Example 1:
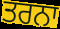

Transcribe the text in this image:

ਤਰਨਾ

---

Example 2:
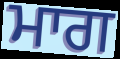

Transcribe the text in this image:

ਮਾਗ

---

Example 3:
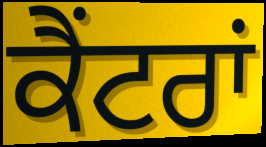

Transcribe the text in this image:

ਕੈਂਟਰਾਂ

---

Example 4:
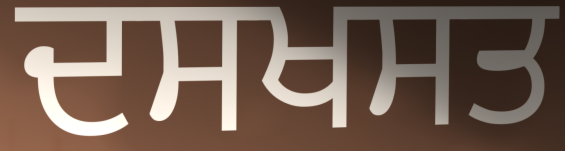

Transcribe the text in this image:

ਦਸਖਸਤ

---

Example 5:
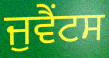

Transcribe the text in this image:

ਜੁਵੈਂਟਸ